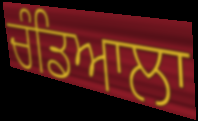
ਚੰਡਿਆਲਾ